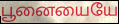
பூனையையே